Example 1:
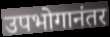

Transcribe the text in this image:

उपभोगानंतर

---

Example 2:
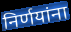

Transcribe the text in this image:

निर्णयांना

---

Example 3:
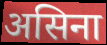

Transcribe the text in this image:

असिना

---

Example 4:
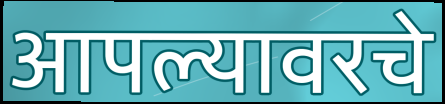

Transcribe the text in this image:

आपल्यावरचे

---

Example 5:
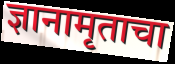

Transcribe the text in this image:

ज्ञानामृताचा